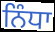
ਨਿੰਧਾ